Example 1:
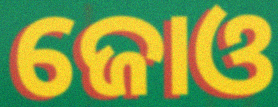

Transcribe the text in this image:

ଜୋଓ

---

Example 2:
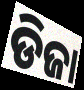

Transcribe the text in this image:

ଡିଜା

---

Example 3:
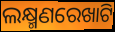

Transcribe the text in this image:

ଲକ୍ଷ୍ମଣରେଖାଟି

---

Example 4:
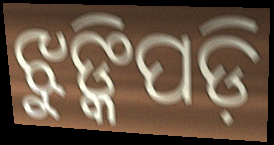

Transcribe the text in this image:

ଝୁଙ୍କିପଡ଼ି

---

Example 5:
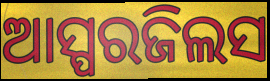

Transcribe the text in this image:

ଆସ୍ପରଜିଲସ